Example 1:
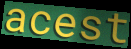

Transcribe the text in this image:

acest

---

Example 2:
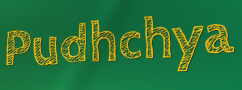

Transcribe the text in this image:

Pudhchya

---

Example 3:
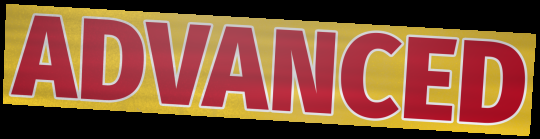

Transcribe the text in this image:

ADVANCED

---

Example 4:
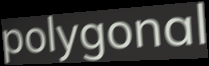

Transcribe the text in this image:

polygonal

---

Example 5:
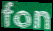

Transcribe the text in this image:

fon